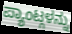
ಪ್ಯಾಂಟ್ಗಳನ್ನು